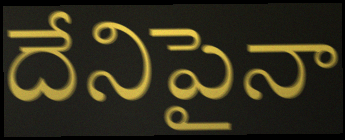
దేనిపైనా